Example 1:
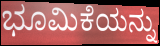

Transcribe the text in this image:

ಭೂಮಿಕೆಯನ್ನು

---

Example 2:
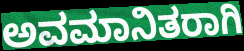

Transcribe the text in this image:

ಅವಮಾನಿತರಾಗಿ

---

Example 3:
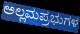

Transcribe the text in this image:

ಅಲ್ಲಮಪ್ರಭುಗಳ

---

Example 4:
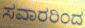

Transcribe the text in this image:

ಸವಾರರಿಂದ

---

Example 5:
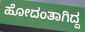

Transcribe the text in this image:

ಹೋದಂತಾಗಿದ್ದ